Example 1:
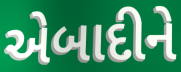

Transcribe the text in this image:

એબાદીને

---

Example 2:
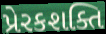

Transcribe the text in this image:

પ્રેરકશક્તિ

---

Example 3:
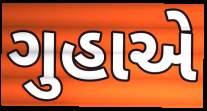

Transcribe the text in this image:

ગુહાએ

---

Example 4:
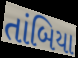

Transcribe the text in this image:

તાંબિયા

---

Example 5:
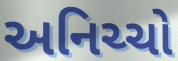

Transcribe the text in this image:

અનિચ્ચો